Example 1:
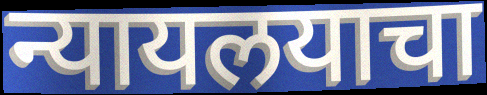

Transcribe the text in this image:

न्यायलयाचा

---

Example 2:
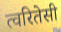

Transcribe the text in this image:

त्वरितेसी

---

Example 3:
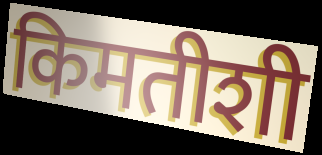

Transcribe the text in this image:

किमतीशी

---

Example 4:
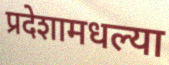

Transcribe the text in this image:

प्रदेशामधल्या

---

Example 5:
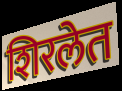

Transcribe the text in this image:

शिरलेत